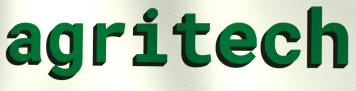
agritech